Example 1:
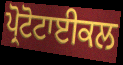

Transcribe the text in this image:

ਪ੍ਰੋਟੋਟਾਈਕਲ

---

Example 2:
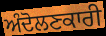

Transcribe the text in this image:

ਅੰਦੋਲਣਕਾਰੀ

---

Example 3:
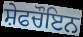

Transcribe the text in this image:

ਸ਼ੇਫਚੌਇਨ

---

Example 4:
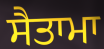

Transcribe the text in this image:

ਸੈਤਾਮਾ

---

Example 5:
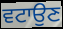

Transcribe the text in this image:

ਵਟਾਉਣ